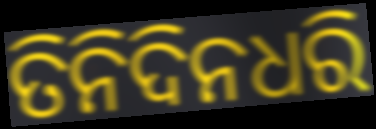
ତିନିଦିନଧରି